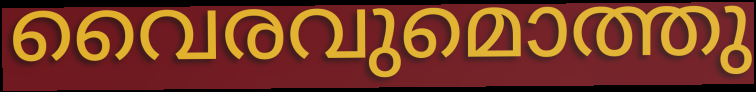
വൈരവുമൊത്തു